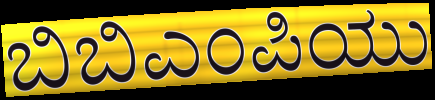
ಬಿಬಿಎಂಪಿಯು